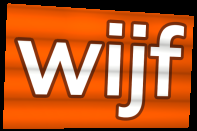
wijf